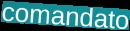
comandato